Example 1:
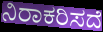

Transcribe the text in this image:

ನಿರಾಕರಿಸದೆ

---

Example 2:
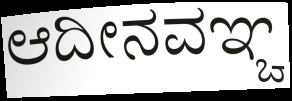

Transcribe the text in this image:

ಆದೀನವಞ್ಚ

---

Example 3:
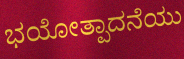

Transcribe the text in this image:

ಭಯೋತ್ಪಾದನೆಯು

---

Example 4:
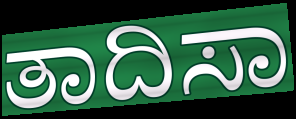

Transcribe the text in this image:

ತಾದಿಸಾ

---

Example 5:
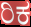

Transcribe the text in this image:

ರಿಕ